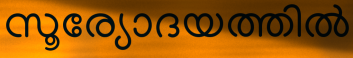
സൂര്യോദയത്തിൽ